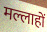
मल्लाहों